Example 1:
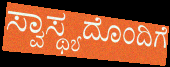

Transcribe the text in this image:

ಸ್ವಾಸ್ಥ್ಯದೊಂದಿಗೆ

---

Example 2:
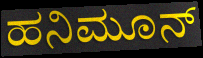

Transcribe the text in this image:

ಹನಿಮೂನ್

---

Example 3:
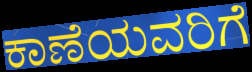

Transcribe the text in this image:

ಕಾಣೆಯವರಿಗೆ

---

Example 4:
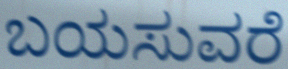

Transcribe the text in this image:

ಬಯಸುವರೆ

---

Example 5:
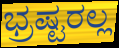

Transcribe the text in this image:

ಭ್ರಷ್ಟರಲ್ಲ